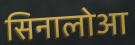
सिनालोआ